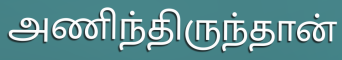
அணிந்திருந்தான்